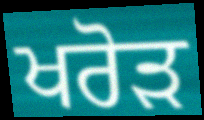
ਖਰੋੜ